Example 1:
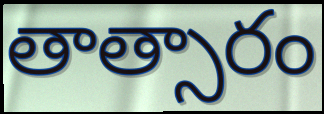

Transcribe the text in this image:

తాత్సారం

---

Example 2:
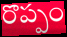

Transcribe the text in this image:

రొప్పం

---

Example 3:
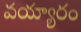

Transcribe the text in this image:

వయ్యారం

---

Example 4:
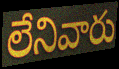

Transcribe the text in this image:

లేనివారు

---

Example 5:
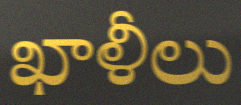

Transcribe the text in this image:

ఖాళీలు